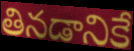
తినడానికే